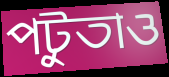
পটুতাও